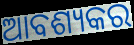
ଆବଶ୍ୟକର